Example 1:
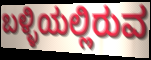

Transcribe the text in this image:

ಬಳ್ಳಿಯಲ್ಲಿರುವ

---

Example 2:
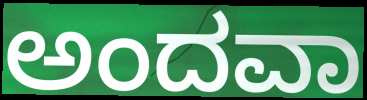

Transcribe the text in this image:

ಅಂದವಾ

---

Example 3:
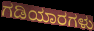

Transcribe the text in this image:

ಗಡಿಯಾರಗಳು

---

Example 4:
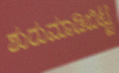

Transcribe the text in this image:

ಶುರುಮಾಡಿಬಿಟ್ಟ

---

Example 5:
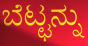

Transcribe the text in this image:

ಬೆಟ್ಟನ್ನು